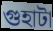
গুহাটা